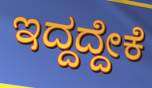
ಇದ್ದದ್ದೇಕೆ